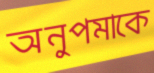
অনুপমাকে